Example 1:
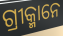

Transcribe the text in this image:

ଗ୍ରୀକ୍ମାନେ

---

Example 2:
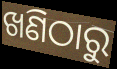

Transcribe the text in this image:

ଖଣିଠାରୁ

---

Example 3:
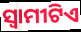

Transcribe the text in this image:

ସ୍ୱାମୀଟିଏ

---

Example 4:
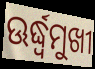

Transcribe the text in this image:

ଊର୍ଦ୍ଧ୍ବମୁଖୀ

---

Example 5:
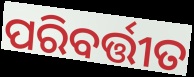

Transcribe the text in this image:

ପରିବର୍ତ୍ତୀତ